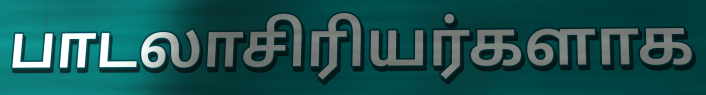
பாடலாசிரியர்களாக